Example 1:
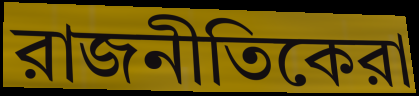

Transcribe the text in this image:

রাজনীতিকেরা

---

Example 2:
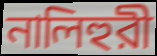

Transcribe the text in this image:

নালিহুরী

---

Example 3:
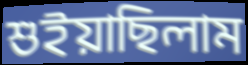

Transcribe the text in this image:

শুইয়াছিলাম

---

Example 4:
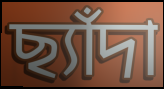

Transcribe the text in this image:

ছ্যাঁদা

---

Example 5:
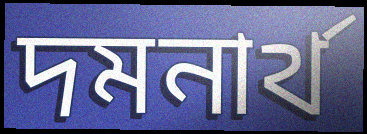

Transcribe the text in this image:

দমনার্থ